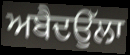
ਅਬੈਦਉੱਲਾ